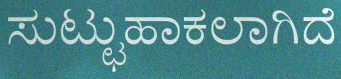
ಸುಟ್ಟುಹಾಕಲಾಗಿದೆ